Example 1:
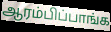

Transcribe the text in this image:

ஆரம்பிப்பாங்க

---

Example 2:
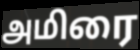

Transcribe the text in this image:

அமிரை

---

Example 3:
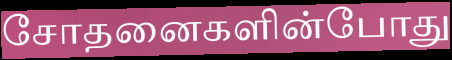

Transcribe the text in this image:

சோதனைகளின்போது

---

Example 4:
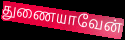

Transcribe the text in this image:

துணையாவேன்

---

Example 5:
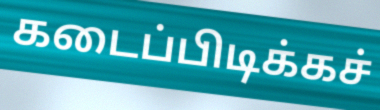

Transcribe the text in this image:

கடைப்பிடிக்கச்